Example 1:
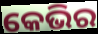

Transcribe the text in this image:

କେଭିର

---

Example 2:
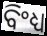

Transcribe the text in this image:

ବିଂଧ୍ୟ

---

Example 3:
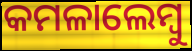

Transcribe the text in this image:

କମଳାଲେମ୍ୱୁ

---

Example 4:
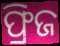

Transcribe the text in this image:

ଫ୍ରିଜ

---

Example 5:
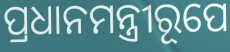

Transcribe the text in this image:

ପ୍ରଧାନମନ୍ତ୍ରୀରୂପେ